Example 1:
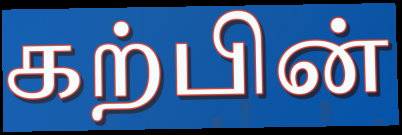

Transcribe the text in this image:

கற்பின்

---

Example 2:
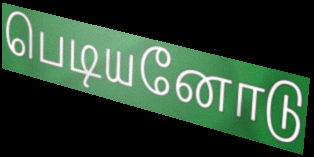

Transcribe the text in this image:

பெடியனோடு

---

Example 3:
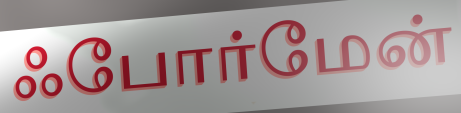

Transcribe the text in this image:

ஃபோர்மேன்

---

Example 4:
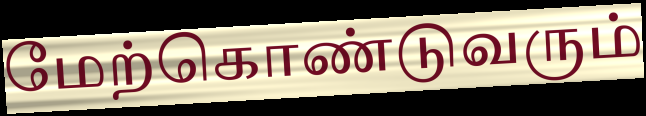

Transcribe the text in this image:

மேற்கொண்டுவரும்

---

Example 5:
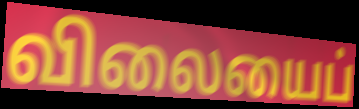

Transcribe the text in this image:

விலையைப்